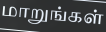
மாறுங்கள்